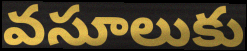
వసూలుకు